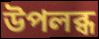
উপলব্ধ